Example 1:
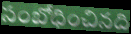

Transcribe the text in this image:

సంబోధించినది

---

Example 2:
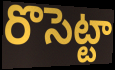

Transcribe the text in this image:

రొసెట్టా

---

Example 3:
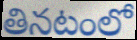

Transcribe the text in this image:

తినటంలో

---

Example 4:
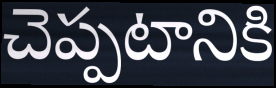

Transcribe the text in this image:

చెప్పటానికి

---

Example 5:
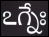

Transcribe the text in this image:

ఽగ్నేః